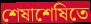
শেষাশেষিতে